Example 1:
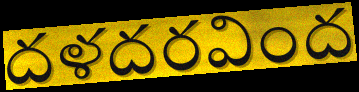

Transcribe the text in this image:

దళదరవింద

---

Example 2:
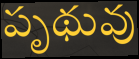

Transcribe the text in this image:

పృథువు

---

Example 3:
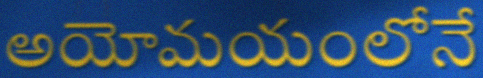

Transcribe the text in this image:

అయోమయంలోనే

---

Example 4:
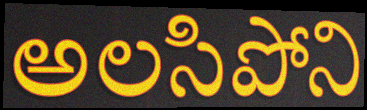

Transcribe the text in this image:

అలసిపోని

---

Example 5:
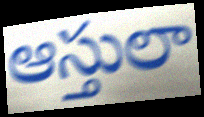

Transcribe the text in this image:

ఆస్తులా